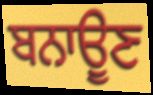
ਬਨਾਊਣ